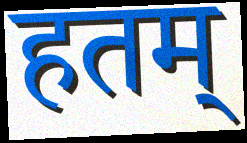
हतम्